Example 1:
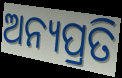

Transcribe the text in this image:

ଅନ୍ୟପ୍ରତି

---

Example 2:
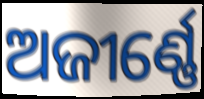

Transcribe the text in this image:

ଅଜୀର୍ଣ୍ଣେ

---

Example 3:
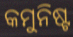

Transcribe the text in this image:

କମୁନିଷ୍ଟ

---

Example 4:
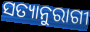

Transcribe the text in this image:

ସତ୍ୟାନୁରାଗୀ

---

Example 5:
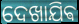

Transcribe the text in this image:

ଦେଖାଯିଵ